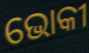
ଭୋକୀ